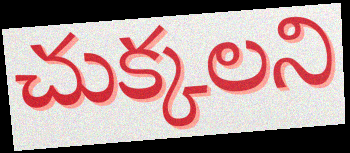
చుక్కలని